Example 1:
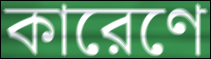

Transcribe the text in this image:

কারেণে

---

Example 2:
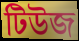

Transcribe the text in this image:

টিউজ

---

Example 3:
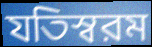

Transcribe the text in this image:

যতিস্বরম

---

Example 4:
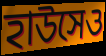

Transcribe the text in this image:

হাউসেও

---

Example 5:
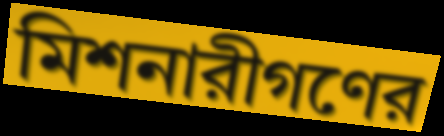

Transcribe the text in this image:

মিশনারীগণের